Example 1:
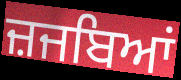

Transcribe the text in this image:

ਜ਼ਜਬਿਆਂ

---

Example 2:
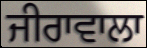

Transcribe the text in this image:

ਜੀਰਾਵਾਲਾ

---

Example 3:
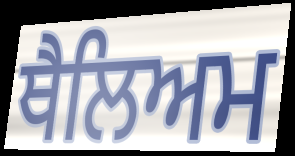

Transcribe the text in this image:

ਥੈਲਿਅਮ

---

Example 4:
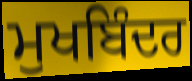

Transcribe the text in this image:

ਮੁਖਬਿੰਦਰ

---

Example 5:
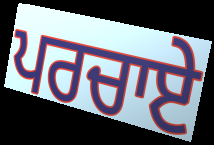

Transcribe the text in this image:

ਪਰਚਾਏ